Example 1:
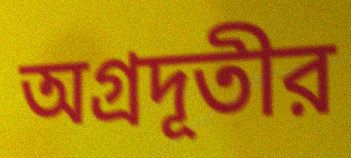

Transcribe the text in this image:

অগ্রদূতীর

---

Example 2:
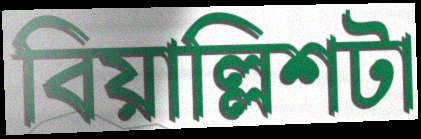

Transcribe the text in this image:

বিয়াল্লিশটা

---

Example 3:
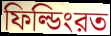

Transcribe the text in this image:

ফিল্ডিংরত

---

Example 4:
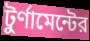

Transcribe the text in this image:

টুর্ণামেন্টের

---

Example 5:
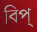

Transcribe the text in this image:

বিপ্